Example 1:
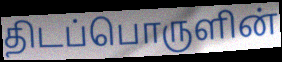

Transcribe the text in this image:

திடப்பொருளின்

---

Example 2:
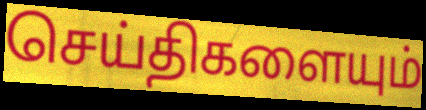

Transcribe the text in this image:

செய்திகளையும்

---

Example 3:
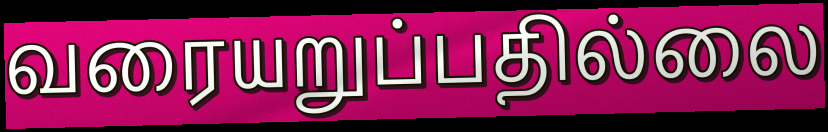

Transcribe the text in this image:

வரையறுப்பதில்லை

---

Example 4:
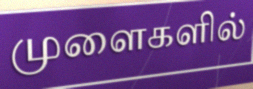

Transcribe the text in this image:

முளைகளில்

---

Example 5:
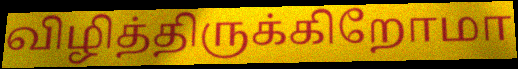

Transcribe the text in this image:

விழித்திருக்கிறோமா